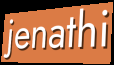
jenathi